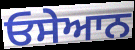
ਓਸੇਆਨ